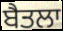
ਬੈਤਲਾ